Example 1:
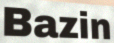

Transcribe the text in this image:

Bazin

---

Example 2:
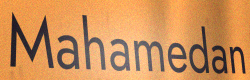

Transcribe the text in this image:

Mahamedan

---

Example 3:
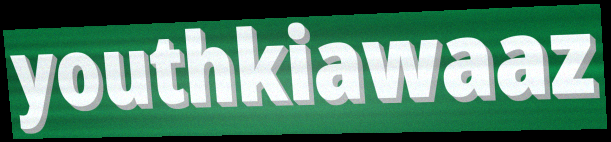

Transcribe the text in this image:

youthkiawaaz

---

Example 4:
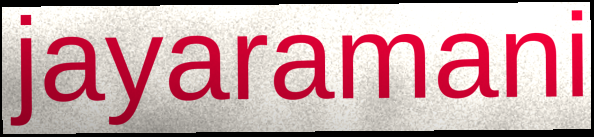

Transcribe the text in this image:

jayaramani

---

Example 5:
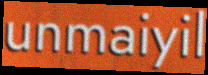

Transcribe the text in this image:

unmaiyil